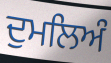
ਦੁਮਲਿਅੰ